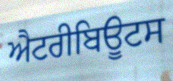
ਐਟਰੀਬਿਊਟਸ